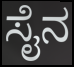
ಸೈನ